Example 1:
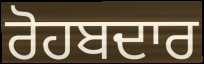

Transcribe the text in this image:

ਰੋਹਬਦਾਰ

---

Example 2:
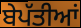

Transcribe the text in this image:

ਬੇਪੱਤੀਆਂ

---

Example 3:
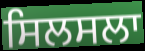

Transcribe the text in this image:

ਸਿਲਸਲਾ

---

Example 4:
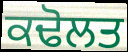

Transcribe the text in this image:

ਕਢੋਲਤ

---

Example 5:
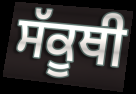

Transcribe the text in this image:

ਸੱਕੂਥੀ